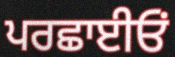
ਪਰਛਾਈਓਂ